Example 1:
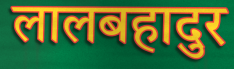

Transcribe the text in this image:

लालबहादुर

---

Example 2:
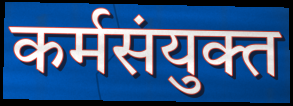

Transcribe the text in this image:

कर्मसंयुक्त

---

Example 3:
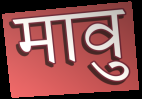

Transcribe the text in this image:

मावु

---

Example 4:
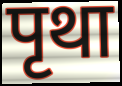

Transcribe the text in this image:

पृथा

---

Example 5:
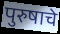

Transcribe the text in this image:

पुरुषाचे